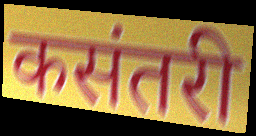
कसंतरी